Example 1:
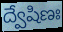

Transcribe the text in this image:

ద్వేషిణః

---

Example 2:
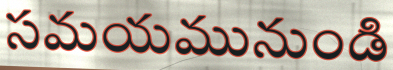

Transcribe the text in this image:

సమయమునుండి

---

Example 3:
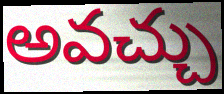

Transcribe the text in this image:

అవచ్చు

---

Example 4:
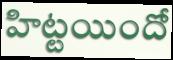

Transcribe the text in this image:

హిట్టయిందో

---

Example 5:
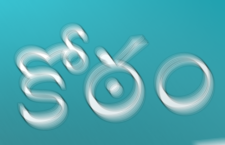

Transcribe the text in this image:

కోఠం